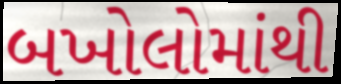
બખોલોમાંથી